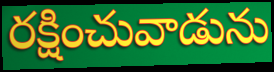
రక్షించువాడును